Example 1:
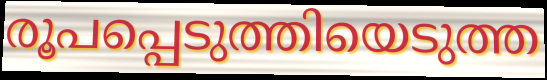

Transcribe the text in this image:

രൂപപ്പെടുത്തിയെടുത്ത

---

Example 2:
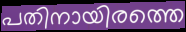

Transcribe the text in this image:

പതിനായിരത്തെ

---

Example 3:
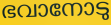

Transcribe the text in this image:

ഭവാനോടു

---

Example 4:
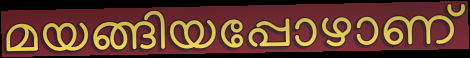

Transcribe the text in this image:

മയങ്ങിയപ്പോഴാണ്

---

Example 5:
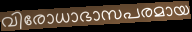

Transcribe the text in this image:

വിരോധാഭാസപരമായ